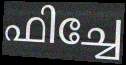
ഫിച്ചേ